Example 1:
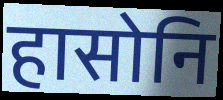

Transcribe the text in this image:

हासोनि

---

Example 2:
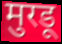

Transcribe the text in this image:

मुरडू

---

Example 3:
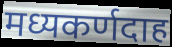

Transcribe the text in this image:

मध्यकर्णदाह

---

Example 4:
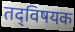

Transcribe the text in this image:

तद्‌विषयक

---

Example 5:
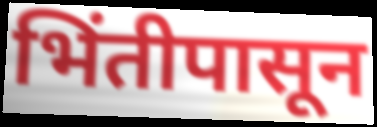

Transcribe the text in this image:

भिंतीपासून